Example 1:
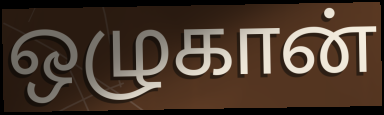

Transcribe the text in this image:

ஒழுகான்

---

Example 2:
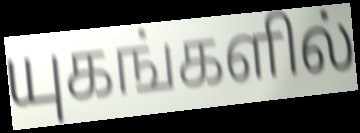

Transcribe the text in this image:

யுகங்களில்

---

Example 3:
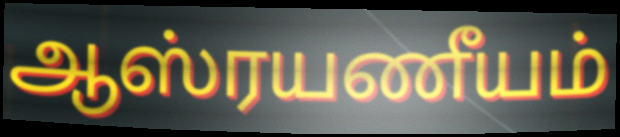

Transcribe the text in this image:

ஆஸ்ரயணீயம்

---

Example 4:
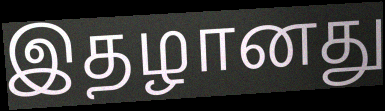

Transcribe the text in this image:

இதழானது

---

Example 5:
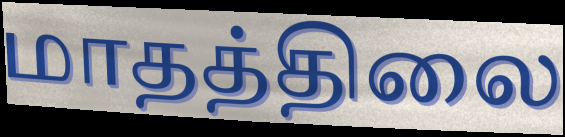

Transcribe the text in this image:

மாதத்திலை